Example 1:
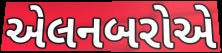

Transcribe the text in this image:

એલનબરોએ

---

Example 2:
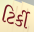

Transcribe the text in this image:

ટિર્કી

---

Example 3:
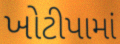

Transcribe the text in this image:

ખોટીપામાં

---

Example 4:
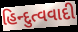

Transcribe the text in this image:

હિન્દુત્વવાદી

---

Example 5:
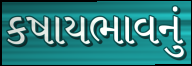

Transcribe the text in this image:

કષાયભાવનું